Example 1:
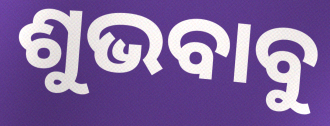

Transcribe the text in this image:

ଶୁଭବାବୁ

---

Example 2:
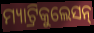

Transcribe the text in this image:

ମ୍ୟାଟ୍ରିକୁଲେସନ୍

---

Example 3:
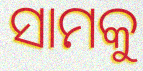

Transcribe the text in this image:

ସାମକୁ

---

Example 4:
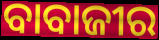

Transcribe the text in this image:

ବାବାଜୀର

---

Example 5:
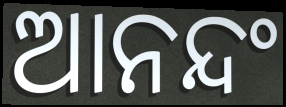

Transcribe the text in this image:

ଆନନ୍ଦଂ